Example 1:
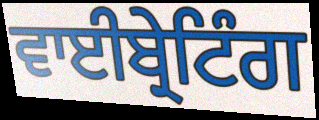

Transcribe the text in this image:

ਵਾਈਬ੍ਰੇਟਿੰਗ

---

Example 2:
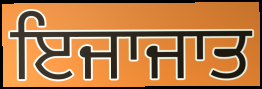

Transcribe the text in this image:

ਇਜਾਜਾਤ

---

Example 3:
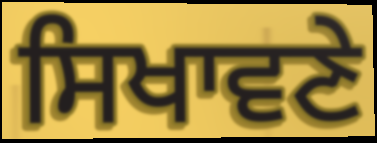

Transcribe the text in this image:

ਸਿਖਾਵਣੇ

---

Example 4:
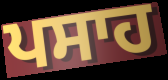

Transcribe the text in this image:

ਪਸਾਹ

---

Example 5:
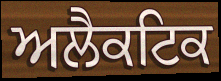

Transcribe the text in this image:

ਅਲੈਕਟਿਕ